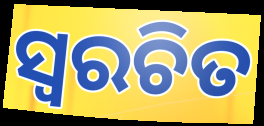
ସ୍ୱରଚିତ